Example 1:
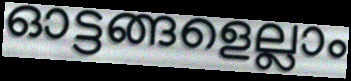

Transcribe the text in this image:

ഓട്ടങ്ങളെല്ലാം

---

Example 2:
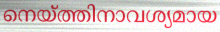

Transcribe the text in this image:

നെയ്ത്തിനാവശ്യമായ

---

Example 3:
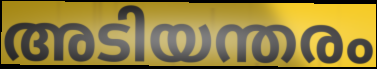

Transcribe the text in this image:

അടിയന്തരം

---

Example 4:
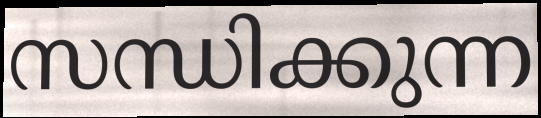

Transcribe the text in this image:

സന്ധിക്കുന്ന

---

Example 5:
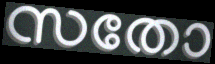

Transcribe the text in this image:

സതോ